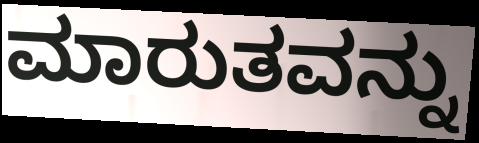
ಮಾರುತವನ್ನು